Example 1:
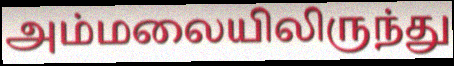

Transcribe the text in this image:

அம்மலையிலிருந்து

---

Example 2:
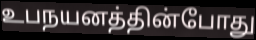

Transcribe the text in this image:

உபநயனத்தின்போது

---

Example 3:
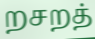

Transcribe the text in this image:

றசறத்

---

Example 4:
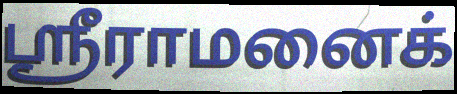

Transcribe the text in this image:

ஸ்ரீராமனைக்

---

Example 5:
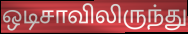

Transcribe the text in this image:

ஒடிசாவிலிருந்து